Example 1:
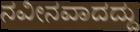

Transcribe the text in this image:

ನವೀನವಾದದ್ದು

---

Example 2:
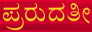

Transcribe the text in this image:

ಪ್ರರುದತೀ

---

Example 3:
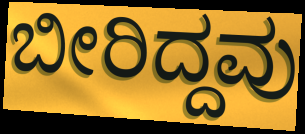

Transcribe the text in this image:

ಬೀರಿದ್ದವು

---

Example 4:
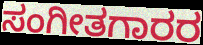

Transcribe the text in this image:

ಸಂಗೀತಗಾರರ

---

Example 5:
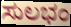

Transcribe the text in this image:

ಸುಲಭಂ